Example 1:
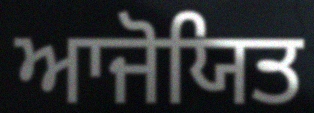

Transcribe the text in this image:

ਆਜੋਯਿਤ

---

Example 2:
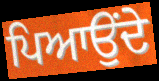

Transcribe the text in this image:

ਪਿਆਉਂਦੇ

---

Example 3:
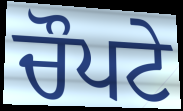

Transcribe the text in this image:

ਚੌਪਟੇ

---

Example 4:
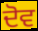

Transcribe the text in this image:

ਦੋਵ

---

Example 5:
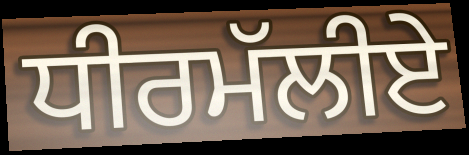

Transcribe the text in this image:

ਧੀਰਮੱਲੀਏ